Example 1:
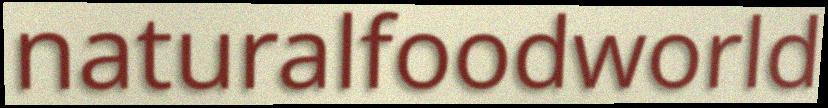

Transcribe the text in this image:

naturalfoodworld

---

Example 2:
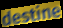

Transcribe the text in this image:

destine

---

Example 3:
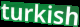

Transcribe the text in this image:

turkish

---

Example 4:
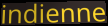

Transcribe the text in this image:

indienne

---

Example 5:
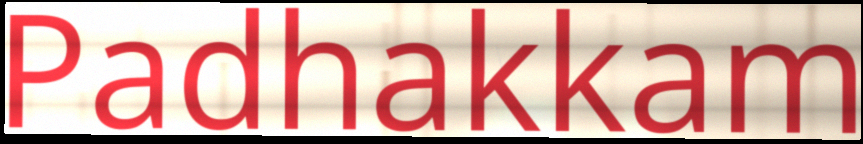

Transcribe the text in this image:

Padhakkam